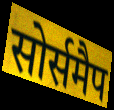
सोर्समैप